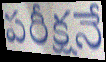
పరీక్షనే